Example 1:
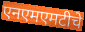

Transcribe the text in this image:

एनएमएमटीचे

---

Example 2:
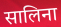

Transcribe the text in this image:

सालिना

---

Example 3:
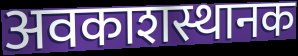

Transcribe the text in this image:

अवकाशस्थानक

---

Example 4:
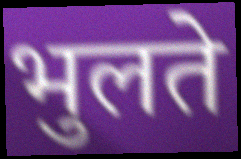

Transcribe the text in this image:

भुलते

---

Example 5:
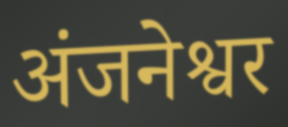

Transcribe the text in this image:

अंजनेश्वर